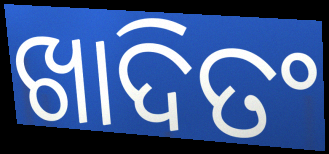
ଖାଦିତଂ